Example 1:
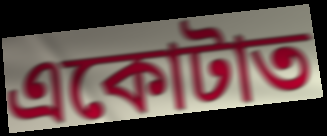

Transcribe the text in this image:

একোটাত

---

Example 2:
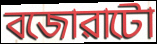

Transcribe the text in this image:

বজোৱাটো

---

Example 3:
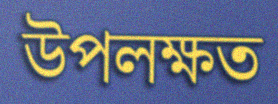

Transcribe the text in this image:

উপলক্ষত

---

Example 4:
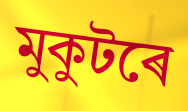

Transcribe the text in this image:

মুকুটৰে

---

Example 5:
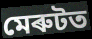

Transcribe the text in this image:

মেৰুটত